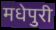
मधेपुरी